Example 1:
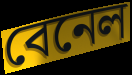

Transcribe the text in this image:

বেনেল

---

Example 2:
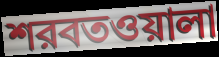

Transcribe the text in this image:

শরবতওয়ালা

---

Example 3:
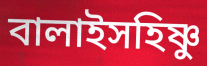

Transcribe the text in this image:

বালাইসহিষ্ণু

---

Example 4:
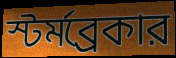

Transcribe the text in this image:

স্টর্মব্রেকার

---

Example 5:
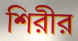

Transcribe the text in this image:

শিরীর